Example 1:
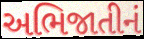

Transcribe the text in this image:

અભિજાતીનં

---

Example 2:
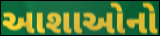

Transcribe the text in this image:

આશાઓનો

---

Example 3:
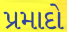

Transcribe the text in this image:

પ્રમાદો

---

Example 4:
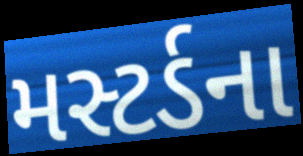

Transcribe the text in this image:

મસ્ટર્ડના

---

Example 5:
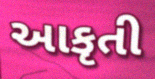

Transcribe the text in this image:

આકૃતી